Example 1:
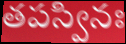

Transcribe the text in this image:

తపస్వినః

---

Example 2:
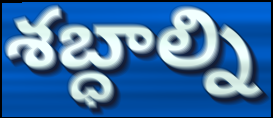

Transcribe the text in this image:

శబ్ధాల్ని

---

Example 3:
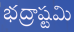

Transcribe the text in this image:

భద్రాష్టమి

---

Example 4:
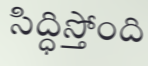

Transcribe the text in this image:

సిద్ధిస్తోంది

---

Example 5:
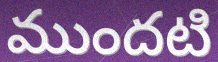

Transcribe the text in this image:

ముందటి